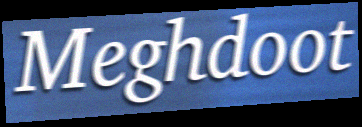
Meghdoot